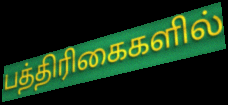
பத்திரிகைகளில்